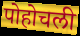
पोहोचली